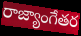
రాజ్యాంగేతర